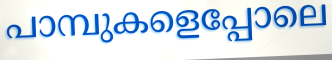
പാമ്പുകളെപ്പോലെ